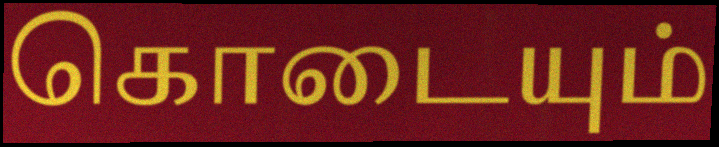
கொடையும்